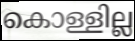
കൊള്ളില്ല